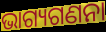
ଭାଗ୍ୟଗଣନା